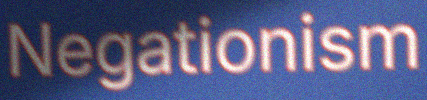
Negationism